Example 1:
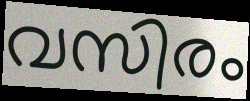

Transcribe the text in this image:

വസിരം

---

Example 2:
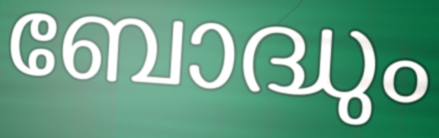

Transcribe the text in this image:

ബോദ്ധും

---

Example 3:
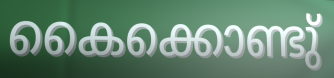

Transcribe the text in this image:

കൈക്കൊണ്ടു്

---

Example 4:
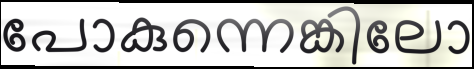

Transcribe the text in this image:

പോകുന്നെങ്കിലോ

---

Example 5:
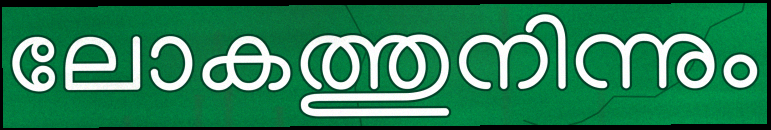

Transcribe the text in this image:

ലോകത്തുനിന്നും